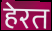
हेरत